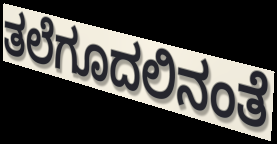
ತಲೆಗೂದಲಿನಂತೆ